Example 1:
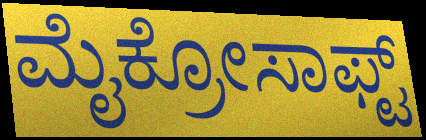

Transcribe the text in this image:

ಮೈಕ್ರೋಸಾಫ್ಟ್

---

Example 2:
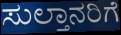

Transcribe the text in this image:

ಸುಲ್ತಾನರಿಗೆ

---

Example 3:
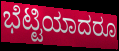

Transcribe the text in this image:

ಭೆಟ್ಟಿಯಾದರೂ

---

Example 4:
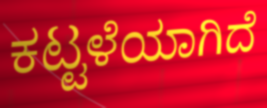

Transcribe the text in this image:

ಕಟ್ಟಳೆಯಾಗಿದೆ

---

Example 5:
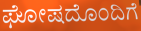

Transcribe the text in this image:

ಘೋಷದೊಂದಿಗೆ